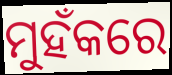
ମୁହଁକରେ